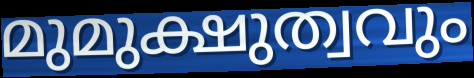
മുമുക്ഷുത്വവും